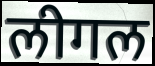
लीगल